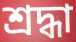
শ্ৰদ্ধা